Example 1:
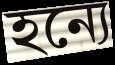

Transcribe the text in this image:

হন্যে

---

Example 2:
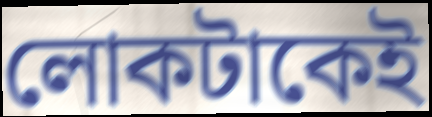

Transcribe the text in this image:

লোকটাকেই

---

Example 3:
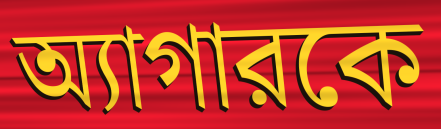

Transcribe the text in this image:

অ্যাগারকে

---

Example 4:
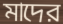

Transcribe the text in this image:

মাদের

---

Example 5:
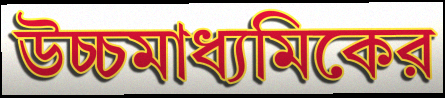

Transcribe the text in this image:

উচ্চমাধ্যমিকের